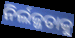
ନିର୍ଲଜ୍ଜତାକୁ